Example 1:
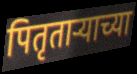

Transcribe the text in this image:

पितृताऱ्याच्या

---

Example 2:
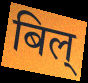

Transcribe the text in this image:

बिल्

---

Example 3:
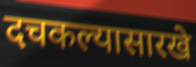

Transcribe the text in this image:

दचकल्यासारखे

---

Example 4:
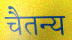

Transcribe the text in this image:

चैतन्य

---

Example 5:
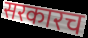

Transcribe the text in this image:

सरकारच